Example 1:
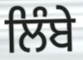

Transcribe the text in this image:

ਲਿੰਬੇ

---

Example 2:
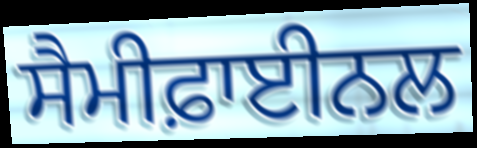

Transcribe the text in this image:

ਸੈਮੀਫ਼ਾਈਨਲ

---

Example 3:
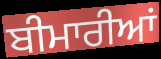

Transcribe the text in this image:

ਬੀਮਾਰੀਆਂ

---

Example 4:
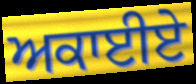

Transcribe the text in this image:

ਅਕਾਈਏ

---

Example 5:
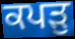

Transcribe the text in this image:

ਕਪੜੁ